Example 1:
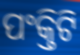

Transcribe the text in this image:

ପଂକ୍ତିଟି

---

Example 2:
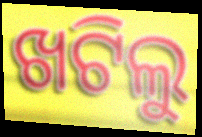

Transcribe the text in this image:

ଖଟିଲୁ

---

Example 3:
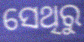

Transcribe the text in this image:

ସେଥିରୁ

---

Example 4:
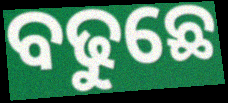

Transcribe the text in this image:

ବଢୁଛେ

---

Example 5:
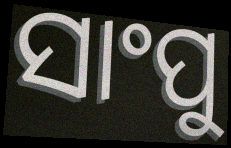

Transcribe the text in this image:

ସାଂପୁ